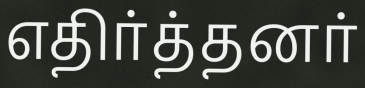
எதிர்த்தனர்